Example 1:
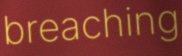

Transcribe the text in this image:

breaching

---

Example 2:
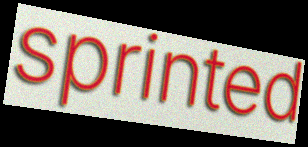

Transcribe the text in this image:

sprinted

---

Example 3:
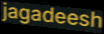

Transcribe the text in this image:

jagadeesh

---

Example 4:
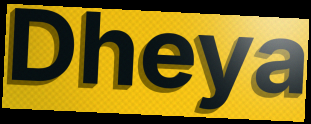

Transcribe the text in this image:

Dheya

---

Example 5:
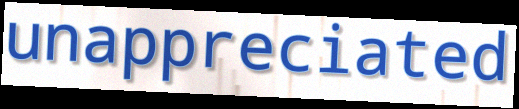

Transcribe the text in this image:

unappreciated